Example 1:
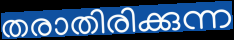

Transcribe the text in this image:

തരാതിരിക്കുന്ന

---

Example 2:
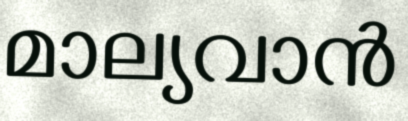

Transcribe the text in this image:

മാല്യവാൻ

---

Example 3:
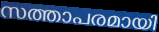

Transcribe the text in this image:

സത്താപരമായി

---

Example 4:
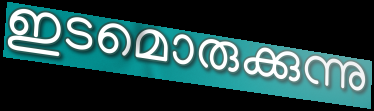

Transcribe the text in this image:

ഇടമൊരുക്കുന്നു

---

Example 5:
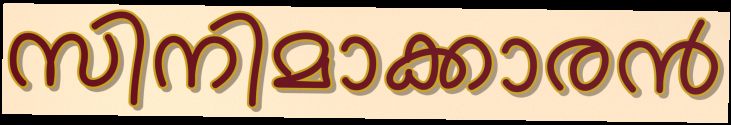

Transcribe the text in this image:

സിനിമാക്കാരൻ